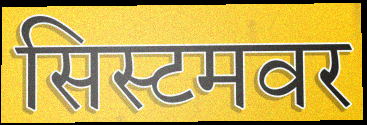
सिस्टमवर